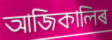
আজিকালিৰ